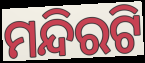
ମନ୍ଦିରଟି